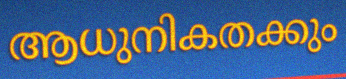
ആധുനികതക്കും